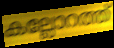
കല്ലോറത്ത്